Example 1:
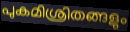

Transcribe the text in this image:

പുകമിശ്രിതങ്ങളും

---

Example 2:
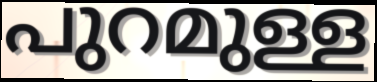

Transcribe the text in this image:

പുറമുള്ള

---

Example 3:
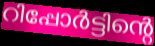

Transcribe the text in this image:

റിപ്പോർട്ടിന്റെ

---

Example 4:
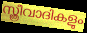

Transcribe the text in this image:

സ്ത്രീവാദികളും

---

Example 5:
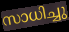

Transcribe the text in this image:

സാധിച്ചു